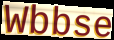
Wbbse